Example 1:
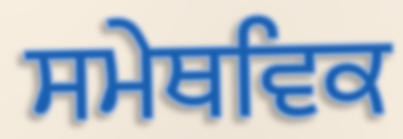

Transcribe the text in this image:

ਸਮੇਥਵਿਕ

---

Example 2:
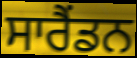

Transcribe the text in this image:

ਸਾਰੈਂਡਨ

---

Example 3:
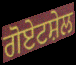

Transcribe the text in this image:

ਗੋਏਟਸ਼ੇਲ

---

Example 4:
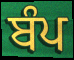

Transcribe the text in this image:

ਬੰਪ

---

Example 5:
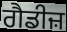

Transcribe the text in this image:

ਗੈਡੀਜ਼